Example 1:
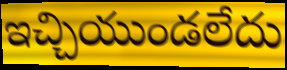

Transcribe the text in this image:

ఇచ్చియుండలేదు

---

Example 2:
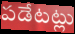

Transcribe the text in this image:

పడేటట్లు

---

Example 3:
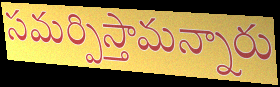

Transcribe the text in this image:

సమర్పిస్తామన్నారు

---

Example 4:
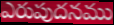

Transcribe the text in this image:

ఎరుపుదనము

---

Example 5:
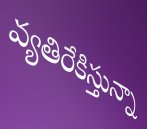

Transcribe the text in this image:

వ్యతిరేకిస్తున్నా